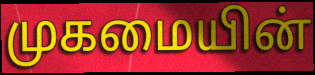
முகமையின்